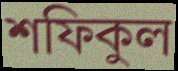
শফিকুল